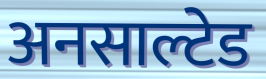
अनसाल्टेड